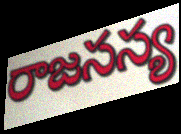
రాజసస్య